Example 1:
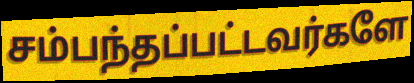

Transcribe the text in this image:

சம்பந்தப்பட்டவர்களே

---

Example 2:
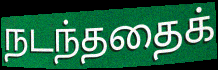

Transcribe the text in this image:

நடந்ததைக்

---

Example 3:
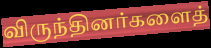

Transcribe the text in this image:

விருந்தினர்களைத்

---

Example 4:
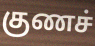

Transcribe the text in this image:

குணச்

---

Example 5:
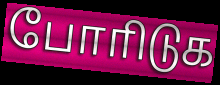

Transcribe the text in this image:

போரிடுக